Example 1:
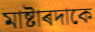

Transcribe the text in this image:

মাষ্টাৰদাকে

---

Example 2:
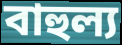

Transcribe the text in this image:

বাহুল্য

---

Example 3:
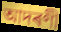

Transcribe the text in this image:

আদৰণী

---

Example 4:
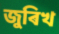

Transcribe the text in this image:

জুৰিখ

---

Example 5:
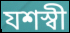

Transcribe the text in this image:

যশস্বী